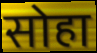
सोहा